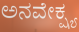
ಅನವೇಕ್ಷ್ಯ